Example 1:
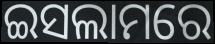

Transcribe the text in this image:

ଇସଲାମରେ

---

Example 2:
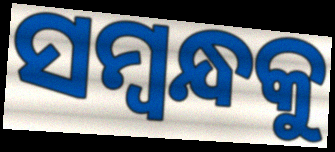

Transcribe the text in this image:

ସମ୍ବନ୍ଧକୁ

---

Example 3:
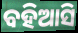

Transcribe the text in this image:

ବହିଆସି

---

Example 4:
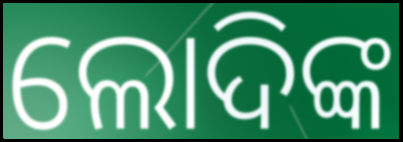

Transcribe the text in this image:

ଲୋଦିଙ୍କ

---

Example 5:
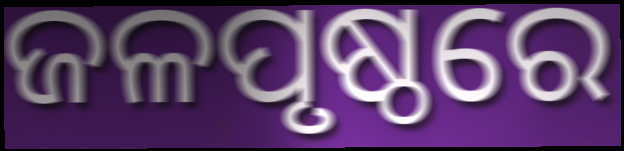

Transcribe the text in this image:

ଜଳପୃଷ୍ଠରେ